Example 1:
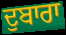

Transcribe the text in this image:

ਦੁਬਾਰਾ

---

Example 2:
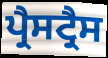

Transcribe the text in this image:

ਪ੍ਰੈਸਟ੍ਰੈਸ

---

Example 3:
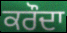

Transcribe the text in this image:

ਕਰੌਦਾ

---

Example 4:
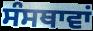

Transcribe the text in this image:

ਸੰਸਥਾਵਾਂ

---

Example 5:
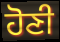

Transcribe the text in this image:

ਹੋਣੀ